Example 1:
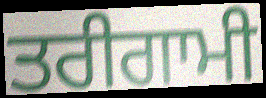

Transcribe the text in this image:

ਤਰੀਗਾਮੀ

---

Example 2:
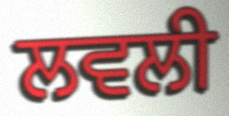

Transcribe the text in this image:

ਲਵਲੀ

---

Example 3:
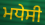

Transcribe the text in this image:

ਮਧੇਸੀ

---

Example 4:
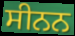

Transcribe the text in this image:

ਸੀਨਨ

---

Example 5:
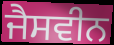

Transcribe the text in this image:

ਜੈਸਵੀਨ